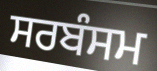
ਸਰਬੰਸਮ